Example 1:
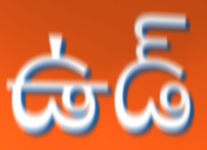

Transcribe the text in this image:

ఉడ్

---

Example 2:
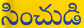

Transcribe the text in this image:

సించుడి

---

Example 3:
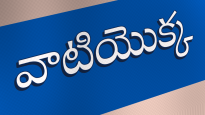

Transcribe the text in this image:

వాటియొక్క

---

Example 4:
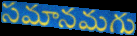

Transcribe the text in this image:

సమానమగు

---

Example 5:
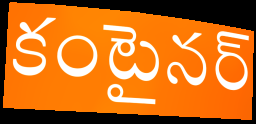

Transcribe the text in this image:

కంటైనర్